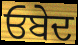
ਓਬੇਦ